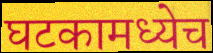
घटकामध्येच